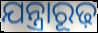
ଯନ୍ତ୍ରାରୂଢ଼